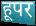
हूपर